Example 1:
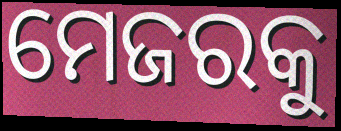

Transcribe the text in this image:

ମେଜରକୁ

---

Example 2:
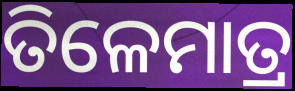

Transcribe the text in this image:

ତିଳେମାତ୍ର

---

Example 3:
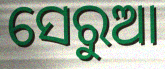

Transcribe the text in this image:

ସେରୁଆ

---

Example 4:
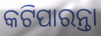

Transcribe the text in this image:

କଟିପାରନ୍ତା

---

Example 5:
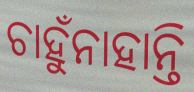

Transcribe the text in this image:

ଚାହୁଁନାହାନ୍ତି